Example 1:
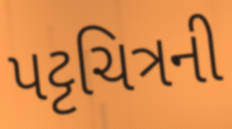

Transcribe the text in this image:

પટ્ટચિત્રની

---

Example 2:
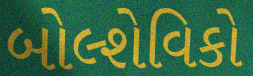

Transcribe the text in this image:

બોલ્શેવિકો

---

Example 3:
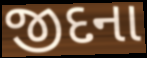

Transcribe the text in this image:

જીદના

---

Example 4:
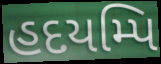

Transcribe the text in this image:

હદયમ્પિ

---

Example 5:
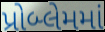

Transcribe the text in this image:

પ્રોબ્લેમમાં